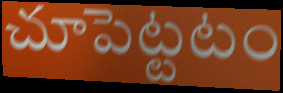
చూపెట్టటం